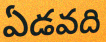
ఏడవది